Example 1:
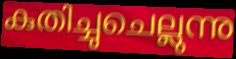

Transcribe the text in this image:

കുതിച്ചുചെല്ലുന്നു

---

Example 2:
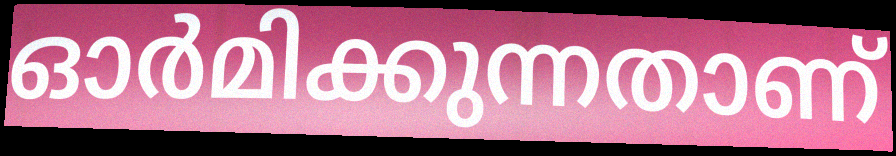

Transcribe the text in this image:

ഓർമിക്കുന്നതാണ്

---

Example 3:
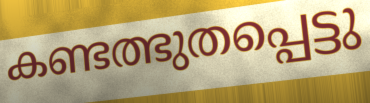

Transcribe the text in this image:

കണ്ടത്ഭുതപ്പെട്ടു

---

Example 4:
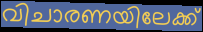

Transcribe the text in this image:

വിചാരണയിലേക്ക്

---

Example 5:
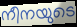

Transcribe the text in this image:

നീനയുടെ